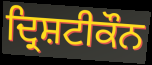
ਦ੍ਰਿਸ਼ਟੀਕੌਨ